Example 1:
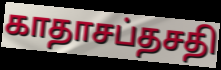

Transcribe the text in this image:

காதாசப்தசதி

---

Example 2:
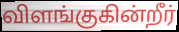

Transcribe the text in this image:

விளங்குகின்றீர்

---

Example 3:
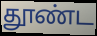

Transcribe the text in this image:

தூண்ட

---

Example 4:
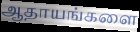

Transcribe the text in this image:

ஆதாயங்களை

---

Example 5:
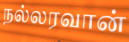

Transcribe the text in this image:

நல்லரவான்